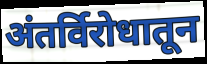
अंतर्विरोधातून